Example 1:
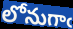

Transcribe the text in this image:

లోనుగాఁ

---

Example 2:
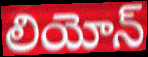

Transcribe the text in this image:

లియోన్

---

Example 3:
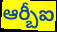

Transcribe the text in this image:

ఆర్బీఐ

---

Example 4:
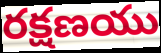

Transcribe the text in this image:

రక్షణయు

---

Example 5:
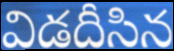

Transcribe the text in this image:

విడదీసిన